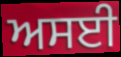
ਅਸਈ